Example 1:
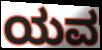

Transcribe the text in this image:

ಯವ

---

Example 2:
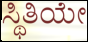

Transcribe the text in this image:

ಸ್ಥಿತಿಯೇ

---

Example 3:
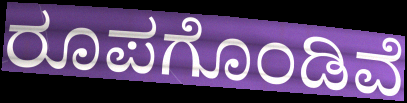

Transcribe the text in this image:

ರೂಪಗೊಂಡಿವೆ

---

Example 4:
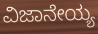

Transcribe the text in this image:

ವಿಜಾನೇಯ್ಯ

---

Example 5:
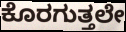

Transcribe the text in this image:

ಕೊರಗುತ್ತಲೇ